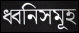
ধ্বনিসমূহ